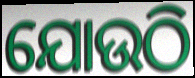
ଯୋଉଠି